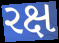
રક્ષ